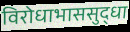
विरोधाभाससुद्धा